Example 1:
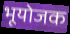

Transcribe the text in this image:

भूयोजक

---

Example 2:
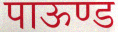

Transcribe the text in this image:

पाऊण्ड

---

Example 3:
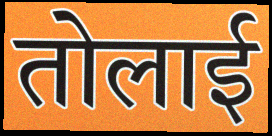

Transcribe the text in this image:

तोलाई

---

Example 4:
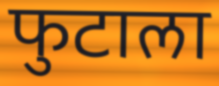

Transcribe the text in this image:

फुटाला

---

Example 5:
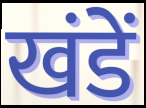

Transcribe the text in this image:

खंडें